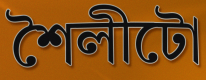
শৈলীটো